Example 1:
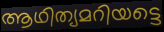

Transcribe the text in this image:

ആഥിത്യമറിയട്ടെ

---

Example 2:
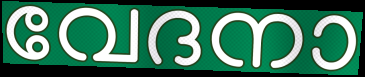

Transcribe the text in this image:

വേദനാ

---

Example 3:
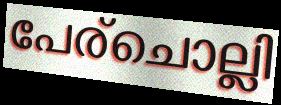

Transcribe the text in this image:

പേര്ചൊല്ലി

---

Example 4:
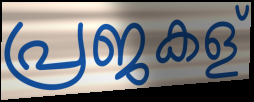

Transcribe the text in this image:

പ്രജകള്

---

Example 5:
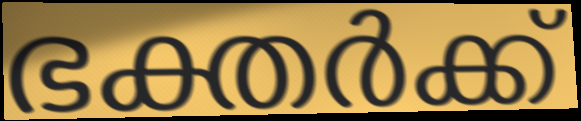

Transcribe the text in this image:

ഭക്തർക്ക്